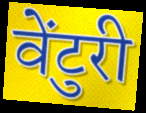
वेंटुरी